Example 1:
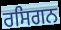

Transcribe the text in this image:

ਰਸਿਗਨ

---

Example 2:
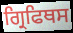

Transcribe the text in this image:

ਗ੍ਰਿਫਿਥਸ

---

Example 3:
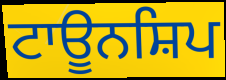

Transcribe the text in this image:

ਟਾਊਨਸ਼ਿਪ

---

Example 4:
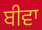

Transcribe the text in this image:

ਬੀਵਾ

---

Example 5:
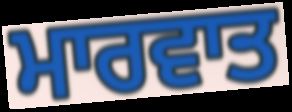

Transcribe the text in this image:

ਮਾਰਵਾਤ